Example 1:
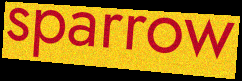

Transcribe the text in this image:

sparrow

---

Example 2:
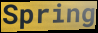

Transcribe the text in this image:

Spring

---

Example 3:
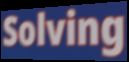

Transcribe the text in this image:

Solving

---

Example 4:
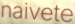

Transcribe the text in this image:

naivete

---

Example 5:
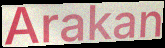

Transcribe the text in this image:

Arakan